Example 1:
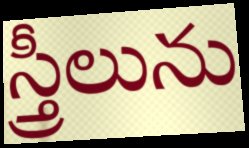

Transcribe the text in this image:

స్త్రీలును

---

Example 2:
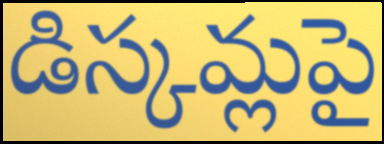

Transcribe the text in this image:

డిస్కమ్లపై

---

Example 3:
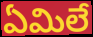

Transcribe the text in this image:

ఏమిలే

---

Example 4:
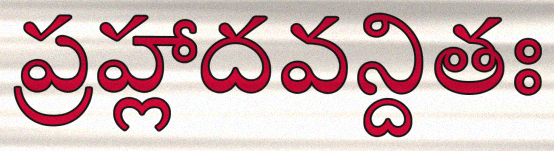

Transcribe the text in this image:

ప్రహ్లాదవన్దితః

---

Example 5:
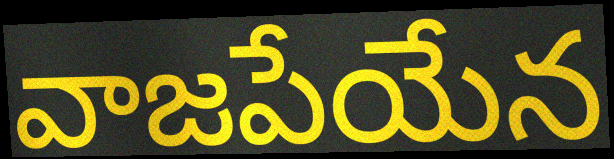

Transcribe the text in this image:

వాజపేయేన